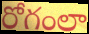
రోగంలా